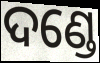
ଦଣ୍ଡେ